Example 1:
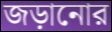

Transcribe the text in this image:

জড়ানোর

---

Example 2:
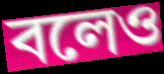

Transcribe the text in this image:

বলেও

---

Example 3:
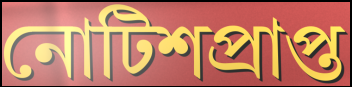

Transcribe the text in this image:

নোটিশপ্রাপ্ত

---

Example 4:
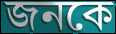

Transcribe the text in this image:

জনকে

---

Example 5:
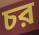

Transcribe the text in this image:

চর